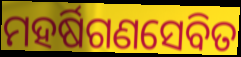
ମହର୍ଷିଗଣସେବିତ